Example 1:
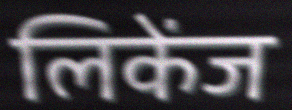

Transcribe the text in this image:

लिकेंज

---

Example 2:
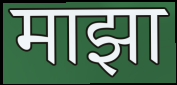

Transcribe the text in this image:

माझा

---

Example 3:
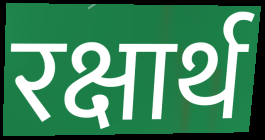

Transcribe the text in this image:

रक्षार्थ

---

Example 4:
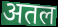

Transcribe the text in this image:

अतल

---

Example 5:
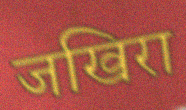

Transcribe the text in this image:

जखिरा